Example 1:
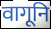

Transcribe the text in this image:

वागूनि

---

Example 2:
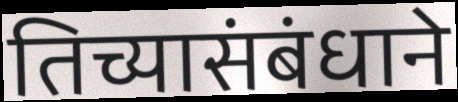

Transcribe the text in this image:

तिच्यासंबंधाने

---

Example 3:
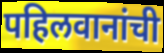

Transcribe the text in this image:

पहिलवानांची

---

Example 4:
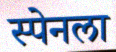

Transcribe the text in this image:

स्पेनला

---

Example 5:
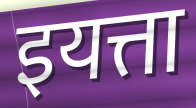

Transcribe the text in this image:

इयत्ता